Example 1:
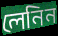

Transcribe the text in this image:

লেনিন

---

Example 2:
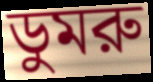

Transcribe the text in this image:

ডুমরু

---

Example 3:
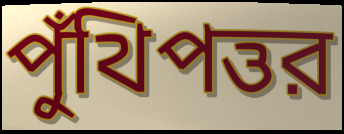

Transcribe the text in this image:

পুঁথিপত্তর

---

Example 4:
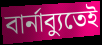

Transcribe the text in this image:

বার্নাব্যুতেই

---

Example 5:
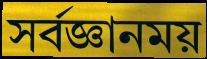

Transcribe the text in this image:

সর্বজ্ঞানময়